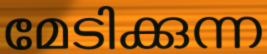
മേടിക്കുന്ന